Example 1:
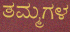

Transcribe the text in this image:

ತಮ್ಮಗಳ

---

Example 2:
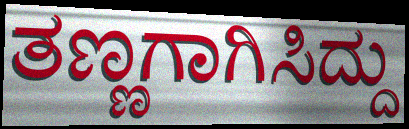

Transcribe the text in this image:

ತಣ್ಣಗಾಗಿಸಿದ್ದು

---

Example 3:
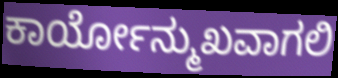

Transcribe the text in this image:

ಕಾರ್ಯೋನ್ಮುಖವಾಗಲಿ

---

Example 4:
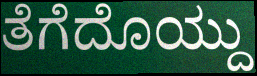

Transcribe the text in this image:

ತೆಗೆದೊಯ್ದು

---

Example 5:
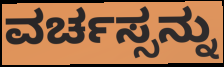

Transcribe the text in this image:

ವರ್ಚಸ್ಸನ್ನು